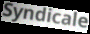
Syndicale